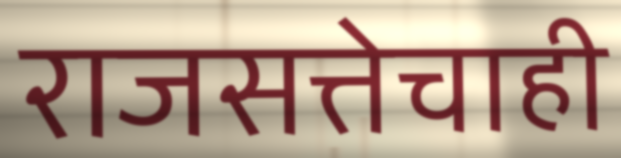
राजसत्तेचाही